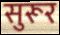
सुरूर